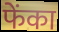
फेंका